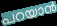
പറയാൻ